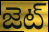
జెట్